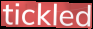
tickled